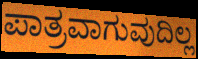
ಪಾತ್ರವಾಗುವುದಿಲ್ಲ